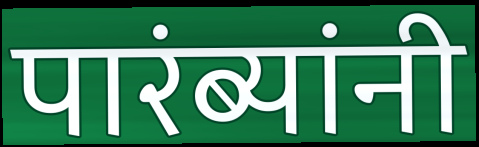
पारंब्यांनी